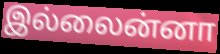
இல்லைன்னா